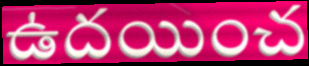
ఉదయించ